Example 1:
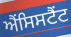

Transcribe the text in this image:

ਐਂਸਿਸਟੈਂਟ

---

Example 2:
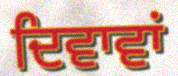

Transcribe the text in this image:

ਦਿਵਾਵਾਂ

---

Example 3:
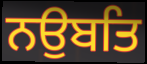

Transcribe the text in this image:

ਨਉਬਤਿ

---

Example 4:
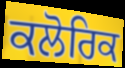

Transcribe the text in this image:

ਕਲੋਰਿਕ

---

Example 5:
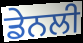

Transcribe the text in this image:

ਡੇਨਲੀ